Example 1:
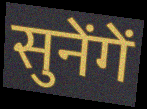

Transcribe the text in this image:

सुनेंगें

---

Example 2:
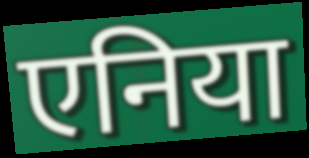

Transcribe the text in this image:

एनिया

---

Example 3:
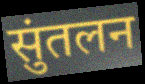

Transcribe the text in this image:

सुंतलन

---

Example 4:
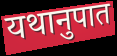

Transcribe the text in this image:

यथानुपात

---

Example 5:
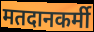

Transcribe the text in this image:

मतदानकर्मी